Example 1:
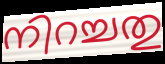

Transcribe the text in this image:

നിറച്ചതു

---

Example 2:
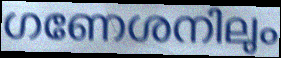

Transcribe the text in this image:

ഗണേശനിലും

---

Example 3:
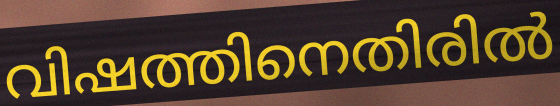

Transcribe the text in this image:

വിഷത്തിനെതിരിൽ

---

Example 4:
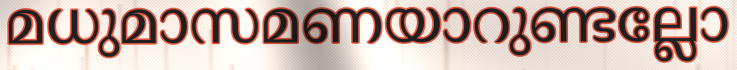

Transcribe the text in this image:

മധുമാസമണയാറുണ്ടല്ലോ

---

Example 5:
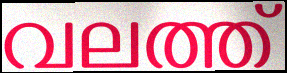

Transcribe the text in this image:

വലത്ത്